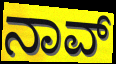
ನಾವ್